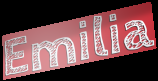
Emilia